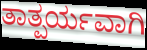
ತಾತ್ಪರ್ಯವಾಗಿ